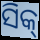
ସିକ୍